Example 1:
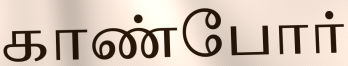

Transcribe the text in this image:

காண்போர்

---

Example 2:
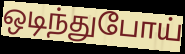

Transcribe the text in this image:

ஒடிந்துபோய்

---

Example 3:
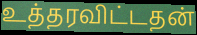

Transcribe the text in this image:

உத்தரவிட்டதன்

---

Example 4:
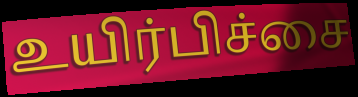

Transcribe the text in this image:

உயிர்பிச்சை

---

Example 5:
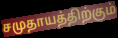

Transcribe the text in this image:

சமுதாயத்திற்கும்